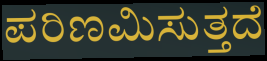
ಪರಿಣಮಿಸುತ್ತದೆ